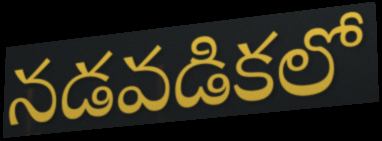
నడవడికలో